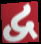
દ્વ